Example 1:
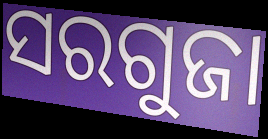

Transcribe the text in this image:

ସରଗୁଜା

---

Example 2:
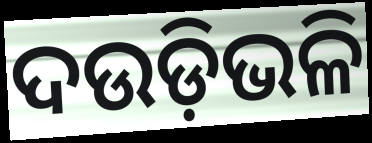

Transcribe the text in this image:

ଦଉଡ଼ିଭଳି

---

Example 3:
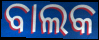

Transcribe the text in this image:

ବାଲକ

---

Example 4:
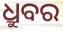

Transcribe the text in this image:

ଧ୍ରୁବର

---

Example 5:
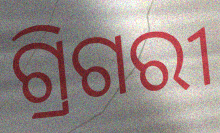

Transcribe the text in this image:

ଗ୍ରିଗରୀ